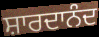
ਸ਼ਾਰਦਾਨੰਦ